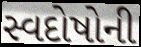
સ્વદોષોની